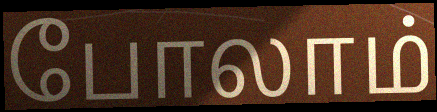
போலாம்